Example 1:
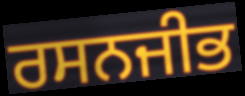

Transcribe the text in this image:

ਰਸਨਜੀਭ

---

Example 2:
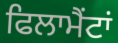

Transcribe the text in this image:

ਫਿਲਾਮੈਂਟਾਂ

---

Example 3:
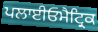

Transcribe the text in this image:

ਪਲਾਈਓਮੈਟ੍ਰਿਕ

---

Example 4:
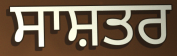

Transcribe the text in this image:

ਸਾਸ਼ਤਰ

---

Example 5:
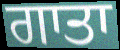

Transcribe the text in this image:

ਗਾਤਾ